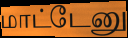
மாட்டேனு